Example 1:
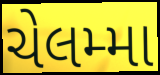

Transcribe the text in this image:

ચેલમ્મા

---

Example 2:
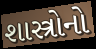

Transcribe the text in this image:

શાસ્ત્રોનો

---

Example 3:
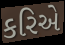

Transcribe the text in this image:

કરિએ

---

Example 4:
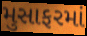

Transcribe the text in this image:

મુસાફરમાં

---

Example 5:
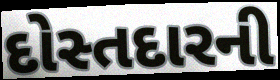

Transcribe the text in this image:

દોસ્તદારની